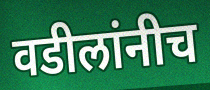
वडीलांनीच